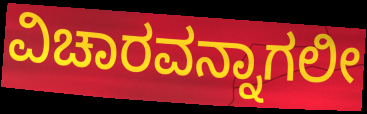
ವಿಚಾರವನ್ನಾಗಲೀ